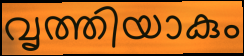
വൃത്തിയാകും